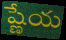
ష్ణేయ